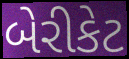
બેરીકેટ